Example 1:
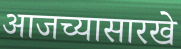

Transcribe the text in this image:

आजच्यासारखे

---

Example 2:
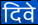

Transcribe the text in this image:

दिवे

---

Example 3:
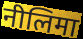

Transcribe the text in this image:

नीलिमा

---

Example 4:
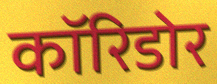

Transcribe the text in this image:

कॉरिडोर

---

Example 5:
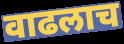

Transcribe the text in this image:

वाढलाच